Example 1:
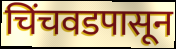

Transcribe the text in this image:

चिंचवडपासून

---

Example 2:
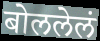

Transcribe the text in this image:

बोललेलं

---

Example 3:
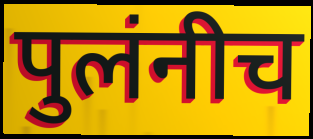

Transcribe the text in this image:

पुलंनीच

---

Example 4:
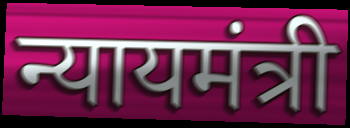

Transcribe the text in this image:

न्यायमंत्री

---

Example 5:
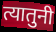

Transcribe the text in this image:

त्यातुनी